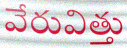
వేరువిత్తు